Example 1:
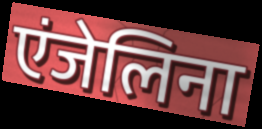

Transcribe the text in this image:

एंजेलिना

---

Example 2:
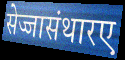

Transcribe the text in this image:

सेज्जासंथारए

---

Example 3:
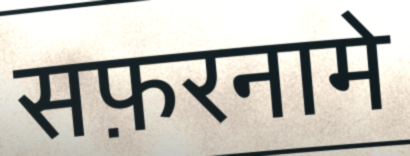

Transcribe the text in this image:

सफ़रनामे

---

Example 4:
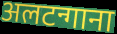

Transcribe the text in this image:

अलटन्गाना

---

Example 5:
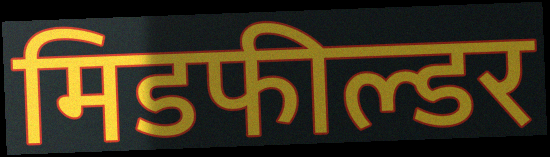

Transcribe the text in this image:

मिडफील्डर